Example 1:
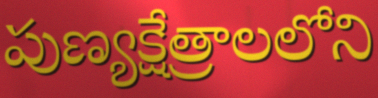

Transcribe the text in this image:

పుణ్యక్షేత్రాలలోని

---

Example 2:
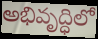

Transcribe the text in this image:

అభివృద్ధిలో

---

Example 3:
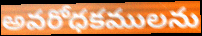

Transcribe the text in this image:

అవరోధకములను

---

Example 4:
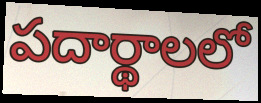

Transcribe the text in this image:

పదార్థాలలో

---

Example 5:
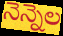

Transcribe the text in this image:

నెన్నెల